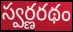
స్వర్ణరథం